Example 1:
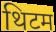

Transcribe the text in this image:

थिटम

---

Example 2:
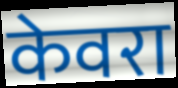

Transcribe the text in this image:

केवरा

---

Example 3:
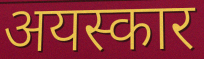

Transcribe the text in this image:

अयस्कार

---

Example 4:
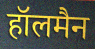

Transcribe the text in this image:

हॉलमैन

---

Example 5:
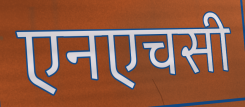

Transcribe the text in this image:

एनएचसी